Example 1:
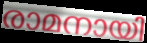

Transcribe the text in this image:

രാമനായി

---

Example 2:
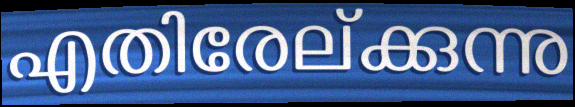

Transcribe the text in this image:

എതിരേല്ക്കുന്നു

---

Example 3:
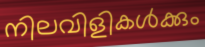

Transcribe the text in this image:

നിലവിളികൾക്കും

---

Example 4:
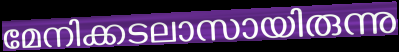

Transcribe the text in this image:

മേനിക്കടലാസായിരുന്നു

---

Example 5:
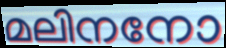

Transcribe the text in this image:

മലിനനോ